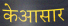
केआसार